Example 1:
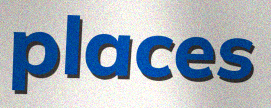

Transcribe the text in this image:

places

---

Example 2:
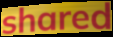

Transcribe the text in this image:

shared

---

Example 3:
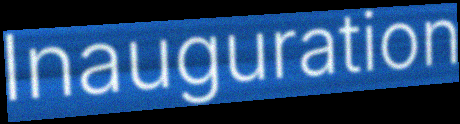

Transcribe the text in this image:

Inauguration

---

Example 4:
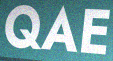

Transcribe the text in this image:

QAE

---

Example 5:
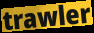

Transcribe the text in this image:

trawler